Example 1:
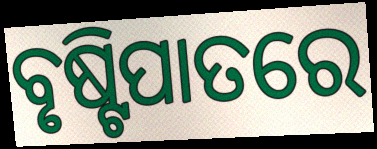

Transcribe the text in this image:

ବୃଷ୍ଟିପାତରେ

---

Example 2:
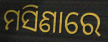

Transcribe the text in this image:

ମସିଣାରେ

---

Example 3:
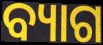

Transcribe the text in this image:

ବ୍ୟାଗ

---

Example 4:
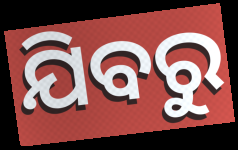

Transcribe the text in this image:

ଯିବରୁ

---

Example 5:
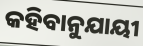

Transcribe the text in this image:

କହିବାନୁଯାୟୀ